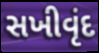
સખીવૃંદ